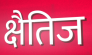
क्षैतिज